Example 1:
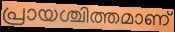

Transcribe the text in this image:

പ്രായശ്ചിത്തമാണ്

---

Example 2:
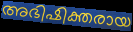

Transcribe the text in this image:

അഭിഷിക്തരായ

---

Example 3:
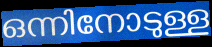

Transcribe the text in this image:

ഒന്നിനോടുള്ള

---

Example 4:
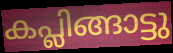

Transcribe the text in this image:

കപ്ലിങ്ങാട്ടു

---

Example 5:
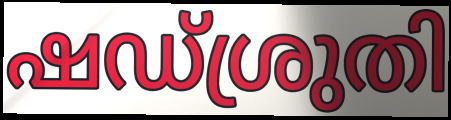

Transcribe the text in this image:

ഷഡ്ശ്രുതി